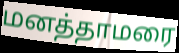
மனத்தாமரை